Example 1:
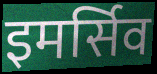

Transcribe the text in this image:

इमर्सिव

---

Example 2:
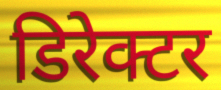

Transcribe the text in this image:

डिरेक्टर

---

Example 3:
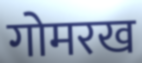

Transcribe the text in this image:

गोमरख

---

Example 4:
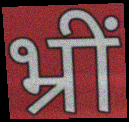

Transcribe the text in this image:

भ्रीं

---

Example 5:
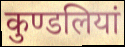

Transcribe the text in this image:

कुण्डलियां